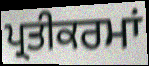
ਪ੍ਰਤੀਕਰਮਾਂ